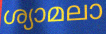
ശ്യാമലാ